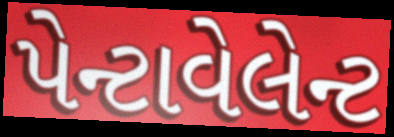
પેન્ટાવેલેન્ટ